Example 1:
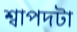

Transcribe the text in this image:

শ্বাপদটা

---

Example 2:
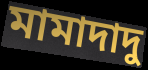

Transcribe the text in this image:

মামাদাদু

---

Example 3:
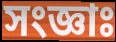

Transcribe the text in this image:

সংজ্ঞাঃ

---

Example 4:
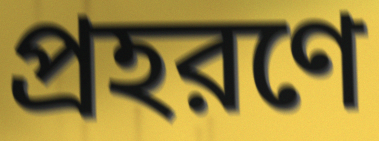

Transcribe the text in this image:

প্রহরণে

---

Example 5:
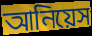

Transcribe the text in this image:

আনিয়েস